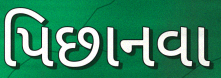
પિછાનવા